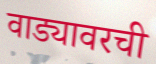
वाड्यावरची